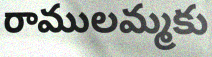
రాములమ్మకు